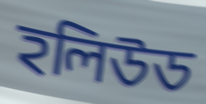
হলিউড